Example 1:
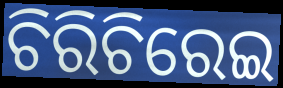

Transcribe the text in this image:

ଚିରିଚିରେଇ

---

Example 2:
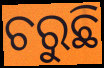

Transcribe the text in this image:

ଚରୁଛି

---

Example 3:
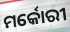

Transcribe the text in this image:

ମର୍କୋରୀ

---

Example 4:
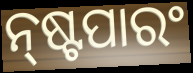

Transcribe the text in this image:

ନ୍‌ଷ୍ଟପାରଂ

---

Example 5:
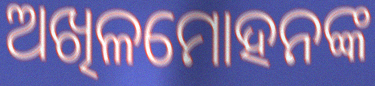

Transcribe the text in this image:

ଅଖିଳମୋହନଙ୍କ